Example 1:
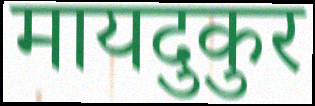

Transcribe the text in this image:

मायदुकुर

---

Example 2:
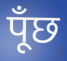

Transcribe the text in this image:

पूँछ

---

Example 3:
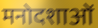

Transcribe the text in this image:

मनोदशाओं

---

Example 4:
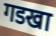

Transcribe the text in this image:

गडखा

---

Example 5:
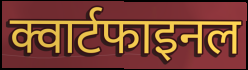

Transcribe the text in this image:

क्वार्टफाइनल